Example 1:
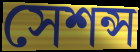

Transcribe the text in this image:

সেশন্স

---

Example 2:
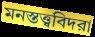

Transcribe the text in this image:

মনস্তত্ত্ববিদরা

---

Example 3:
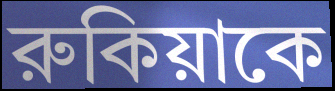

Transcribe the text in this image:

রুকিয়াকে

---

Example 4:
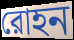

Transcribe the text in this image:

রোহন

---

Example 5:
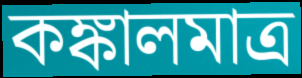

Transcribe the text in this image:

কঙ্কালমাত্র